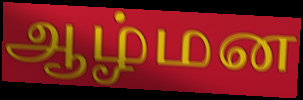
ஆழ்மன